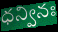
ధన్వినః